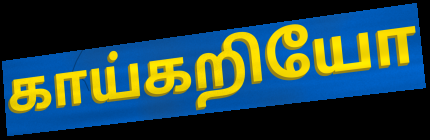
காய்கறியோ